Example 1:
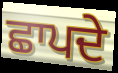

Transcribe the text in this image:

ਛਾਪਦੇ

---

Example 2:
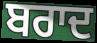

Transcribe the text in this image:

ਬਰਾਦ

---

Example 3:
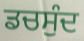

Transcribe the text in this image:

ਡਚਸੁੰਦ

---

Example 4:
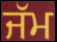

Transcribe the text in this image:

ਜੱਮ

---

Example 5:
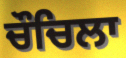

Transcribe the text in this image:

ਚੌਚਿਲਾ